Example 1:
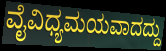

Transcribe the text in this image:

ವೈವಿಧ್ಯಮಯವಾದದ್ದು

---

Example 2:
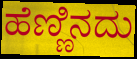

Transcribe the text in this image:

ಹೆಣ್ಣಿನದು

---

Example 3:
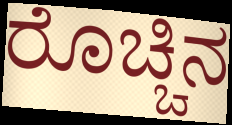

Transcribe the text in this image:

ರೊಚ್ಚಿನ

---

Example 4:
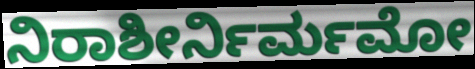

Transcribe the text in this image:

ನಿರಾಶೀರ್ನಿರ್ಮಮೋ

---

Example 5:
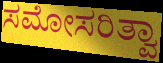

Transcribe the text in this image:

ಸಮೋಸರಿತ್ವಾ